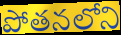
పోతనలోని